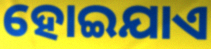
ହୋଇଯାଏ